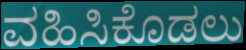
ವಹಿಸಿಕೊಡಲು